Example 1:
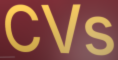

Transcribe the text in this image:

CVs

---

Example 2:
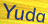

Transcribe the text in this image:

Yuda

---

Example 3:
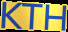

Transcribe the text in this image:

KTH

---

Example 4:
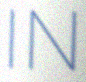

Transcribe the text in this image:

IN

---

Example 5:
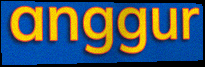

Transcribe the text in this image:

anggur